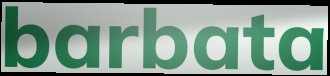
barbata